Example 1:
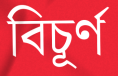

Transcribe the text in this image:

বিচূর্ণ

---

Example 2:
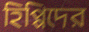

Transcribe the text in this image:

হিপ্পিদের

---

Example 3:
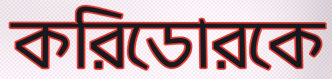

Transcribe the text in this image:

করিডোরকে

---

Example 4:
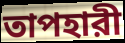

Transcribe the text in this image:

তাপহারী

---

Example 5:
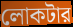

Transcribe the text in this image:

লোকটার